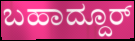
ಬಹಾದ್ದೂರ್